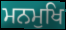
ਮਨਮੁਖਿ